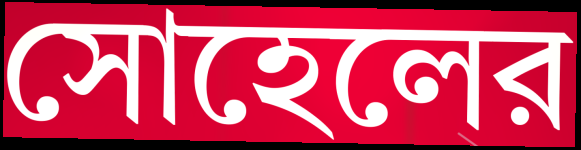
সোহেলের